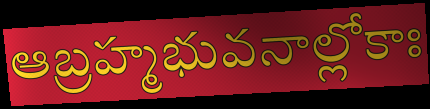
ఆబ్రహ్మభువనాల్లోకాః